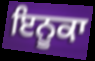
ਇਨੂਕਾ